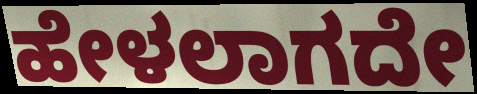
ಹೇಳಲಾಗದೇ